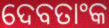
ଦେବତାଂକ